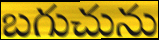
బగుచును